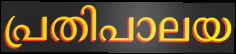
പ്രതിപാലയ